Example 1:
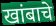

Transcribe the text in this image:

खांबाचे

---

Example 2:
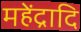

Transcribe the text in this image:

महेंद्रादि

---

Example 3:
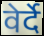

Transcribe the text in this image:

वेर्दे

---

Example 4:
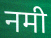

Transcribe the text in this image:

नमी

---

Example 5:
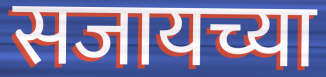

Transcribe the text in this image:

सजायच्या